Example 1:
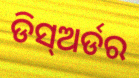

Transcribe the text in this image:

ଡିସ୍ଅର୍ଡର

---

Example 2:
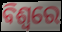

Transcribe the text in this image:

ବିଶ୍ଵରେ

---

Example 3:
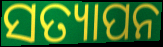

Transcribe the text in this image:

ସତ୍ୟାପନ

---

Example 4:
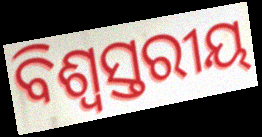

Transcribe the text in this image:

ବିଶ୍ଵସ୍ତରୀୟ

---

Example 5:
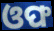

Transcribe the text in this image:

ଓଫ